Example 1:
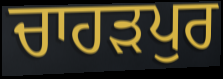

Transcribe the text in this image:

ਚਾਹਡ਼ਪੁਰ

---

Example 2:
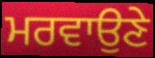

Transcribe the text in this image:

ਮਰਵਾਉਣੇ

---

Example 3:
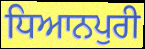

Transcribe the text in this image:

ਧਿਆਨਪੁਰੀ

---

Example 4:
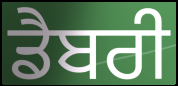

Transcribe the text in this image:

ਡੈਬਰੀ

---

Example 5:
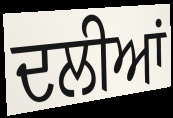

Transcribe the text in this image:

ਦਲੀਆਂ